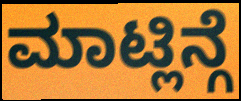
ಮಾಟ್ಲಿನ್ಗೆ